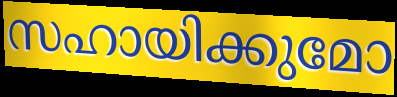
സഹായിക്കുമോ